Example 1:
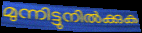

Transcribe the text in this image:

മുന്നിട്ടുനിൽക്കുക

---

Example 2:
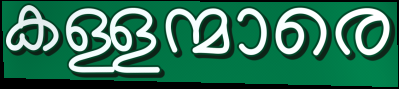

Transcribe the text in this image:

കള്ളന്മാരെ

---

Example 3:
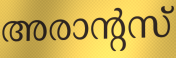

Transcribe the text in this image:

അരാന്റസ്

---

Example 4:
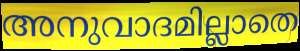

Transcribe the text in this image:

അനുവാദമില്ലാതെ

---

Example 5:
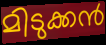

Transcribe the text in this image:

മിടുക്കൻ